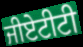
ਜੀਏਟੀਟੀ